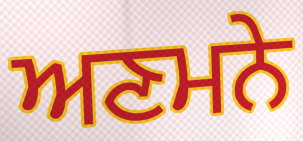
ਅਣਮਨੇ